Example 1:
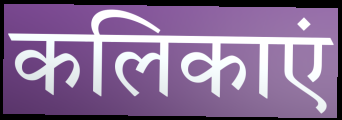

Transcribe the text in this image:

कलिकाएं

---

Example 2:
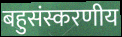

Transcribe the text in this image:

बहुसंस्करणीय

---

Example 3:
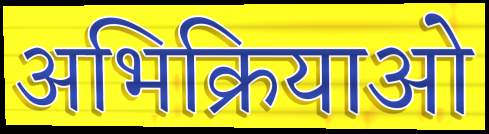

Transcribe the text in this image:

अभिक्रियाओ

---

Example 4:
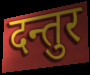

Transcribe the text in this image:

दन्तुर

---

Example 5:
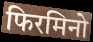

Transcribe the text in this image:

फिरमिनो